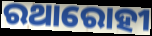
ରଥାରୋହୀ